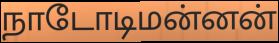
நாடோடிமன்னன்